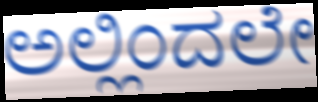
ಅಲ್ಲಿಂದಲೇ